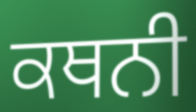
ਕਥਨੀ